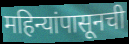
महिन्यांपासूनची